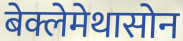
बेक्लेमेथासोन